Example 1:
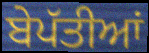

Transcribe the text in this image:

ਬੇਪੱਤੀਆਂ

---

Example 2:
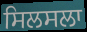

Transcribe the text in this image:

ਸਿਲਸਲਾ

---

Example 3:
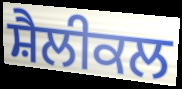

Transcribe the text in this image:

ਸ਼ੈਲੀਕਲ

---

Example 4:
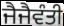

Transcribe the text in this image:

ਜੈਜੈਵੰਤੀ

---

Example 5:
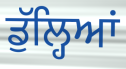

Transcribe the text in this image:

ਡੁੱਲ੍ਹਿਆਂ